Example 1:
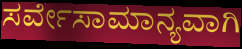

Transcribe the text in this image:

ಸರ್ವೇಸಾಮಾನ್ಯವಾಗಿ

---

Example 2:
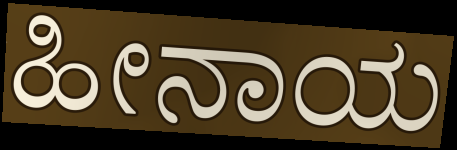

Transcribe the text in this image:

ಹೀನಾಯ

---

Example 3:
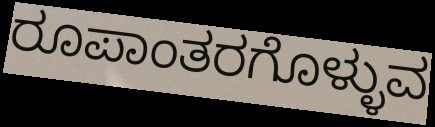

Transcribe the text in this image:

ರೂಪಾಂತರಗೊಳ್ಳುವ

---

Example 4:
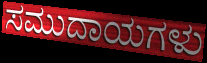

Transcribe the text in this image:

ಸಮುದಾಯಗಳು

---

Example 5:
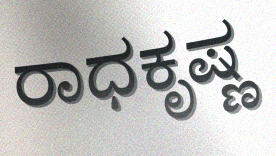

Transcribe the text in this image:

ರಾಧಕೃಷ್ಣ